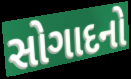
સોગાદનો